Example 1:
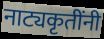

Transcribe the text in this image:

नाट्यकृतींनी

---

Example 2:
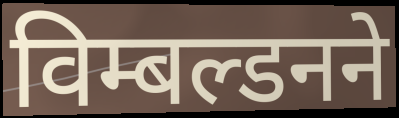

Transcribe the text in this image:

विम्बल्डनने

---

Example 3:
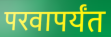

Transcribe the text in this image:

परवापर्यंत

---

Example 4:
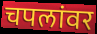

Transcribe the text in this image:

चपलांवर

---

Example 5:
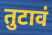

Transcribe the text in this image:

तुटावं